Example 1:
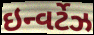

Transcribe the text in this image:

ઇન્વર્ટેઝ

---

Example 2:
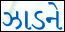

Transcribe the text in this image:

ઝાડને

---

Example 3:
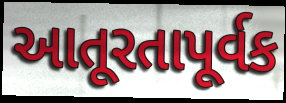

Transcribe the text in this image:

આતૂરતાપૂર્વક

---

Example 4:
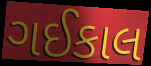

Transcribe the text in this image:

ગઈકાલ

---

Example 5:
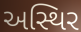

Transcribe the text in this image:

અસ્થિર